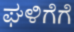
ಘಳಿಗೆಗೆ